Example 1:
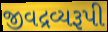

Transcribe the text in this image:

જીવદ્રવ્યરૂપી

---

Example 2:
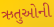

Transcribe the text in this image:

ઋતુઓની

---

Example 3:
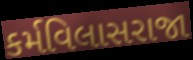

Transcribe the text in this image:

કર્મવિલાસરાજા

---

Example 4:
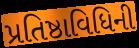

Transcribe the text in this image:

પ્રતિષ્ઠાવિધિની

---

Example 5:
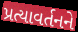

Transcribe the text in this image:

પ્રત્યાવર્તનને